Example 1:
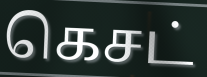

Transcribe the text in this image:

கெசட்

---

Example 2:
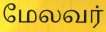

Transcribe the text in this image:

மேலவர்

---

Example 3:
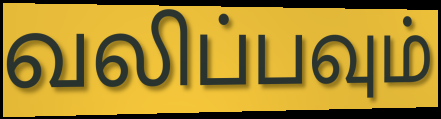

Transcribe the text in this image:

வலிப்பவும்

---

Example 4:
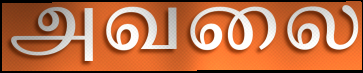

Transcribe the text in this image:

அவலை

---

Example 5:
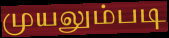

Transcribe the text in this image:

முயலும்படி